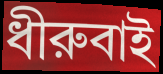
ধীরুবাই